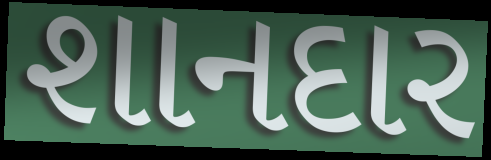
શાનદાર